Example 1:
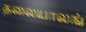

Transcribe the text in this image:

தலையாலங்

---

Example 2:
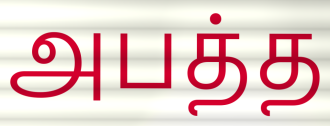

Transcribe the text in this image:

அபத்த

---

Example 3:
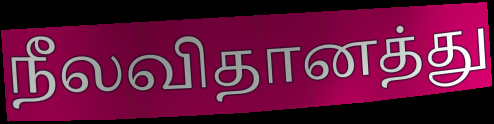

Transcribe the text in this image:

நீலவிதானத்து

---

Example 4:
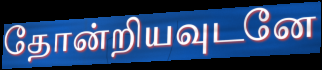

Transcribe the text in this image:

தோன்றியவுடனே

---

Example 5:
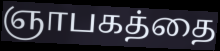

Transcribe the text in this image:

ஞாபகத்தை